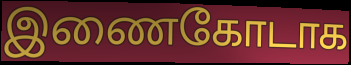
இணைகோடாக